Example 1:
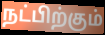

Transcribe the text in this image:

நட்பிற்கும்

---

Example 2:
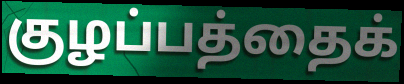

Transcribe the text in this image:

குழப்பத்தைக்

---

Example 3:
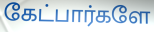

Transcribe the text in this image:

கேட்பார்களே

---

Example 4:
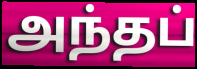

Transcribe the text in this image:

அந்தப்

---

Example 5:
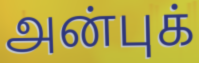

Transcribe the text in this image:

அன்புக்